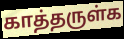
காத்தருள்க